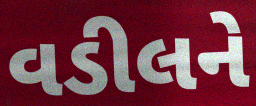
વડીલને